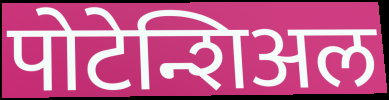
पोटेन्शिअल